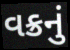
વક્રનું